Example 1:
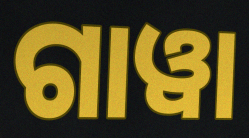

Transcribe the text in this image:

ଗାୱା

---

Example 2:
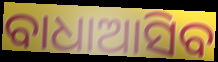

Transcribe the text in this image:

ବାଧାଆସିବ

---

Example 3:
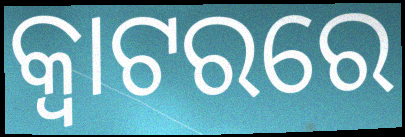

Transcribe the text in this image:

କ୍ୱାଟରରେ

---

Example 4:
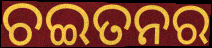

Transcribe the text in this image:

ଚଇତନର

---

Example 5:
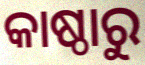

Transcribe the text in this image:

କାଷ୍ଠାରୁ